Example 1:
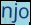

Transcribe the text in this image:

njo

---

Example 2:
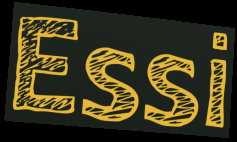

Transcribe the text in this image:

Essi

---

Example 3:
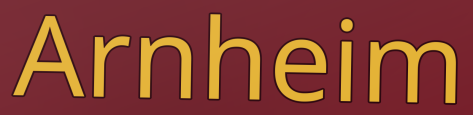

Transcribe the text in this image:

Arnheim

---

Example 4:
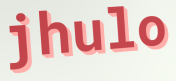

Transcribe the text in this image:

jhulo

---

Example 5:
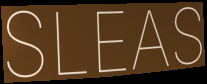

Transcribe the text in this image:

SLEAS